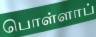
பொள்ளாப்